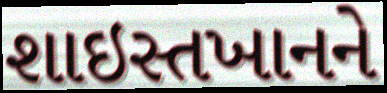
શાઇસ્તખાનને